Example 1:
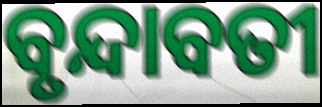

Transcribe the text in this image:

ବୃନ୍ଦାବତୀ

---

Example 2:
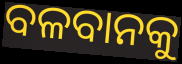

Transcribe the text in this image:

ବଳବାନକୁ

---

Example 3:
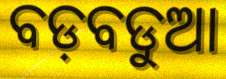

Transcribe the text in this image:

ବଡ଼ବଡୁଆ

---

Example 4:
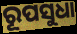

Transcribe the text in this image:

ରୂପସୁଧା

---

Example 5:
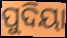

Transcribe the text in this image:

ପୁଦିୟା